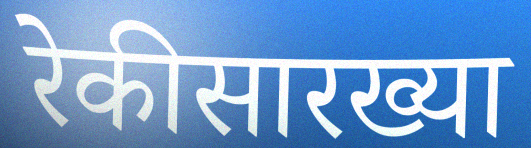
रेकीसारख्या